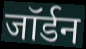
जॉर्डन